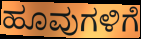
ಹೂವುಗಳಿಗೆ